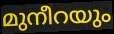
മുനീറയും